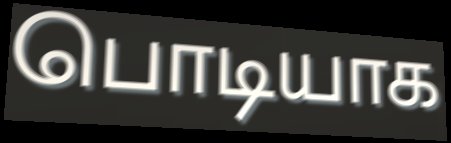
பொடியாக